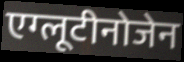
एग्लूटीनोजेन